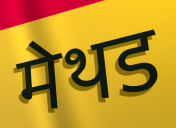
मेथड